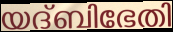
യദ്ബിഭേതി